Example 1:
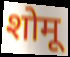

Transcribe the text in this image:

शोमू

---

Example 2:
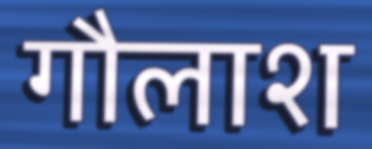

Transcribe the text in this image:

गौलाश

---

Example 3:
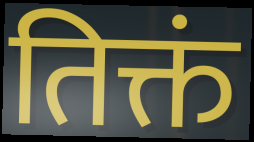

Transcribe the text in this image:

तिक्तं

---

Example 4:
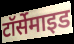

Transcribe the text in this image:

टॉर्सेमाइड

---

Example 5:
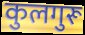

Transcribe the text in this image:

कुलगुरू